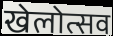
खेलोत्सव